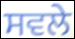
ਸਵਲੇ